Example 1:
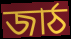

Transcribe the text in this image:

জাঠ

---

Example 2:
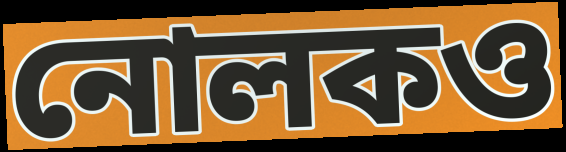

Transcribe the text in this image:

নোলকও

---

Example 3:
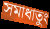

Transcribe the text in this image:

সমাধাতুং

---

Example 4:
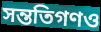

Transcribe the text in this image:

সন্ততিগণও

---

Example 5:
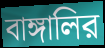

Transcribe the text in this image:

বাঙ্গালির